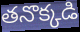
తనొక్కడి